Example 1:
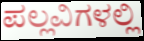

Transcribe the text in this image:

ಪಲ್ಲವಿಗಳಲ್ಲಿ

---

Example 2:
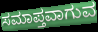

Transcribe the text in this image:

ಸಮಾಪ್ತವಾಗುವ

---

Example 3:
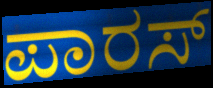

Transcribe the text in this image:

ಪಾರಸ್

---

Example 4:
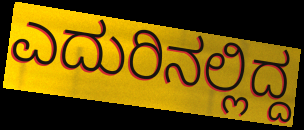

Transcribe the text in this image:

ಎದುರಿನಲ್ಲಿದ್ದ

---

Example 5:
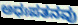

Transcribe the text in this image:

ಅಧಃಪತನವು